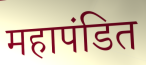
महापंडित